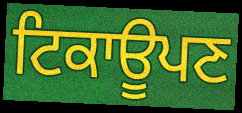
ਟਿਕਾਊਪਣ